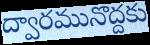
ద్వారమునొద్దకు